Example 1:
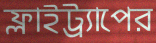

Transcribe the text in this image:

ফ্লাইট্র্যাপের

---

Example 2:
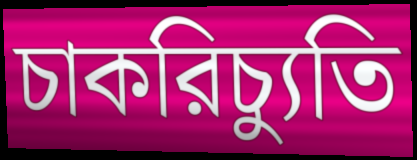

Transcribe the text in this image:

চাকরিচ্যুতি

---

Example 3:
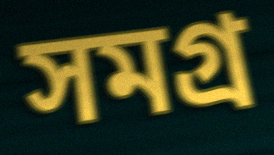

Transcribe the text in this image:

সমগ্র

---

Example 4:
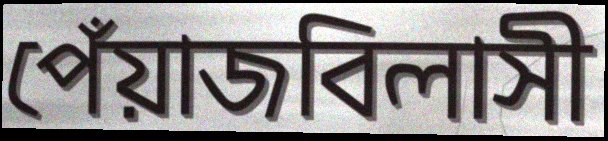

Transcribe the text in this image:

পেঁয়াজবিলাসী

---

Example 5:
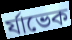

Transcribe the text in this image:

র্যাভেক